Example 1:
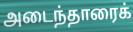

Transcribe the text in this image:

அடைந்தாரைக்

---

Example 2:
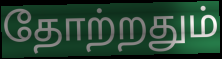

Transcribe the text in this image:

தோற்றதும்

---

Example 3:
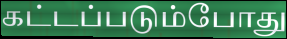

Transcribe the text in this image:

கட்டப்படும்போது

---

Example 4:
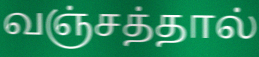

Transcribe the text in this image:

வஞ்சத்தால்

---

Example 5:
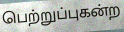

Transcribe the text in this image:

பெற்றுப்புகன்ற